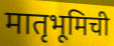
मातृभूमिची